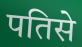
पतिसे